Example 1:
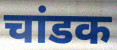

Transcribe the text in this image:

चांडक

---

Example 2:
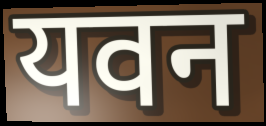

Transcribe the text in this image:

यवन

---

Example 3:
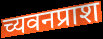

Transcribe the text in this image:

च्यवनप्राश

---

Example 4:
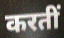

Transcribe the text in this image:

करतीं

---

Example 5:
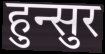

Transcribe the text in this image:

हुन्सुर